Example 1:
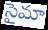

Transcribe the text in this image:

సైమా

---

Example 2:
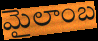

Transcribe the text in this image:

మైలాంబ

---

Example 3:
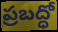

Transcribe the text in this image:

ప్రబద్ధో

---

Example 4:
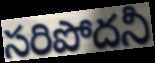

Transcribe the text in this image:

సరిపోదనీ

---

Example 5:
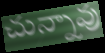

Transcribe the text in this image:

చున్నావు